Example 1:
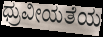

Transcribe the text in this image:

ಧ್ರುವೀಯತೆಯ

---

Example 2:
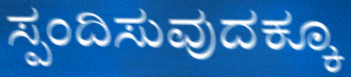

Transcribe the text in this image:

ಸ್ಪಂದಿಸುವುದಕ್ಕೂ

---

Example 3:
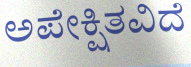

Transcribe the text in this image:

ಅಪೇಕ್ಷಿತವಿದೆ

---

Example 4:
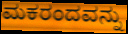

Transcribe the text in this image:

ಮಕರಂದವನ್ನು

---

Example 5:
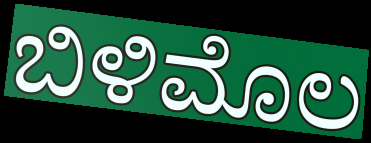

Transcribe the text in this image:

ಬಿಳಿಮೊಲ